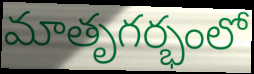
మాతృగర్భంలో